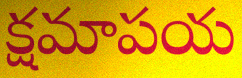
క్షమాపయ